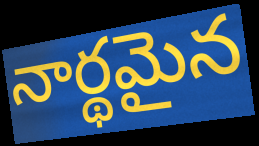
నార్థమైన